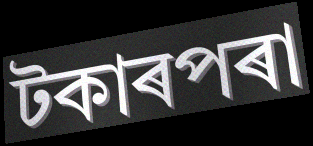
টকাৰপৰা